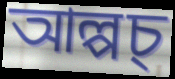
আল্পচ্